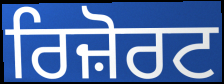
ਰਿਜ਼ੋਰਟ